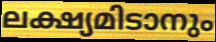
ലക്ഷ്യമിടാനും